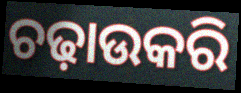
ଚଢ଼ାଉକରି